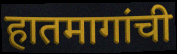
हातमागांची